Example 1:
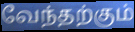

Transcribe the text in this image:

வேந்தற்கும்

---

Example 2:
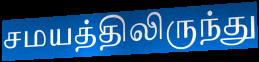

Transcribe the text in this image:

சமயத்திலிருந்து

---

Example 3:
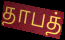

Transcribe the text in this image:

தாபத்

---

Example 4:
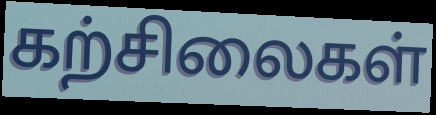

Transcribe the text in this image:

கற்சிலைகள்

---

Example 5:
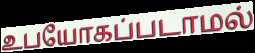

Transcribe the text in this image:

உபயோகப்படாமல்